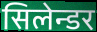
सिलेन्डर